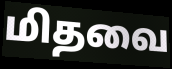
மிதவை